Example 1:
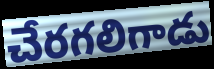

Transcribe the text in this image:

చేరగలిగాడు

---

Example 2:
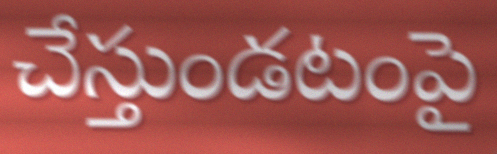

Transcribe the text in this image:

చేస్తుండటంపై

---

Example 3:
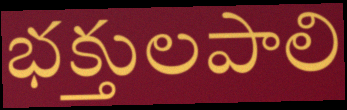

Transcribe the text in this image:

భక్తులపాలి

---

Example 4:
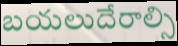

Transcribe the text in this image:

బయలుదేరాల్సి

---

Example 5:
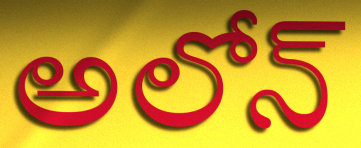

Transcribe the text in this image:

అలోన్